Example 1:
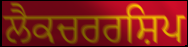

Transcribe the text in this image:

ਲੈਕਚਰਰਸ਼ਿਪ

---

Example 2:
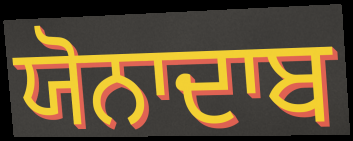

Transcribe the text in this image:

ਯੋਨਾਦਾਬ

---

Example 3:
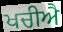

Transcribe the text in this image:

ਖਚੀਐ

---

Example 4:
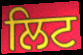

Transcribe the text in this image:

ਲਿਟ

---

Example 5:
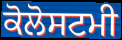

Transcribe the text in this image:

ਕੋਲੋਸਟਮੀ